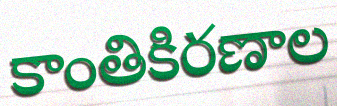
కాంతికిరణాల